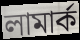
লামার্ক